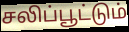
சலிப்பூட்டும்